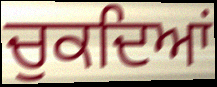
ਚੁਕਦਿਆਂ